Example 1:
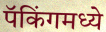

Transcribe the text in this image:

पॅकिंगमध्ये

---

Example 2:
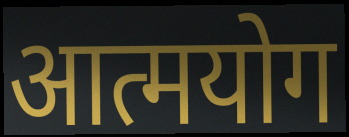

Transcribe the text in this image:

आत्मयोग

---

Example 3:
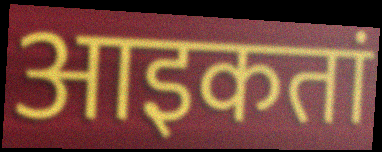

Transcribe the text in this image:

आइकतां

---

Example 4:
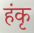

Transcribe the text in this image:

हंकृ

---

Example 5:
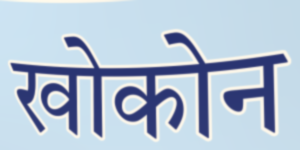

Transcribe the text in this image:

खोकोन